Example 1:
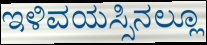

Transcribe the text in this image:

ಇಳಿವಯಸ್ಸಿನಲ್ಲೂ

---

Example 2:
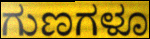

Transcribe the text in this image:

ಗುಣಗಳೂ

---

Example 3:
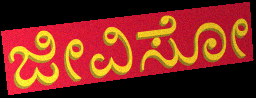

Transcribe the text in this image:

ಜೀವಿಸೋ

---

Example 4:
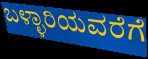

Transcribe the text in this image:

ಬಳ್ಳಾರಿಯವರೆಗೆ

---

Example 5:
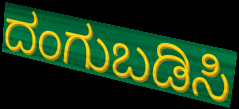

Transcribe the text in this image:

ದಂಗುಬಡಿಸಿ